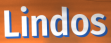
Lindos